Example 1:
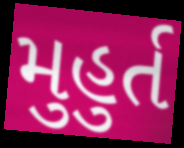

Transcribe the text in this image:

મુહુર્ત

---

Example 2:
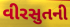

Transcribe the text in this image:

વીરસુતની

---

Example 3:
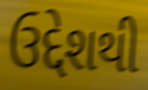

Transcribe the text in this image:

ઉદ્દેશથી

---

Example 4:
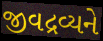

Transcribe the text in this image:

જીવદ્રવ્યને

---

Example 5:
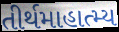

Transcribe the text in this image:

તીર્થમાહાત્મ્ય